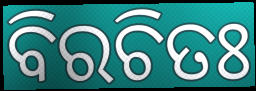
ବିରଚିତଃ